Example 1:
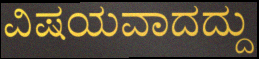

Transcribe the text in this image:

ವಿಷಯವಾದದ್ದು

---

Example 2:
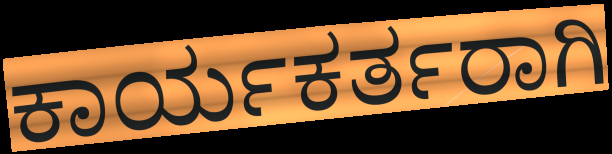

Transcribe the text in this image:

ಕಾರ್ಯಕರ್ತರಾಗಿ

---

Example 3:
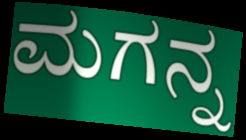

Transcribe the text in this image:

ಮಗನ್ನ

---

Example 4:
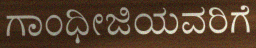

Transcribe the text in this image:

ಗಾಂಧೀಜಿಯವರಿಗೆ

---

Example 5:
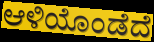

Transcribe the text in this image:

ಆಳಿಯೊಂಡೆದೆ